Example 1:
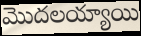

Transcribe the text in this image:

మొదలయ్యాయి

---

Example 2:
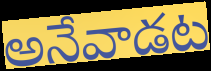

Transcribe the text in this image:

అనేవాడట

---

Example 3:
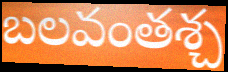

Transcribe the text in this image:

బలవంతశ్చ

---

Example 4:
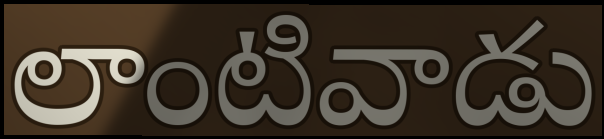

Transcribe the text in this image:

లాంటివాడు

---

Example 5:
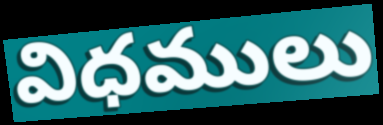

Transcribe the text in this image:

విధములు